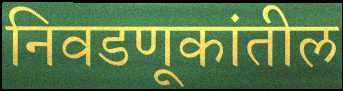
निवडणूकांतील